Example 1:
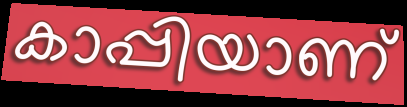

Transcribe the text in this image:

കാപ്പിയാണ്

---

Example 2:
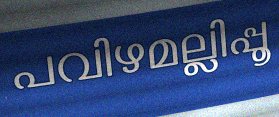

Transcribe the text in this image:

പവിഴമല്ലിപ്പൂ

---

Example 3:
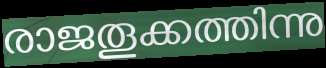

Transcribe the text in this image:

രാജതൂക്കത്തിന്നു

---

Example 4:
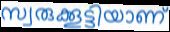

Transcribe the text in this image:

സ്വരുക്കൂട്ടിയാണ്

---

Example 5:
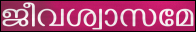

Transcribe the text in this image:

ജീവശ്വാസമേ